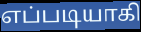
எப்படியாகி